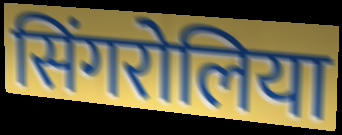
सिंगरोलिया